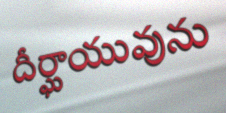
దీర్ఘాయువును